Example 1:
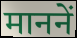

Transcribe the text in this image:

माननें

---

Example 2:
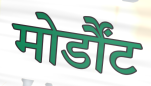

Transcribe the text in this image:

मोर्डौंट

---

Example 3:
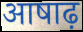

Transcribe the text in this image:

आषाढ़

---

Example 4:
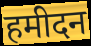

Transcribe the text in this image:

हमीदन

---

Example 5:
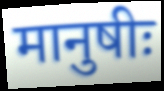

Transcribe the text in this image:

मानुषीः